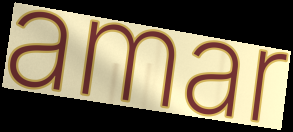
amar